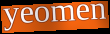
yeomen